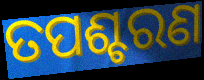
ତପଶ୍ଚରଣ